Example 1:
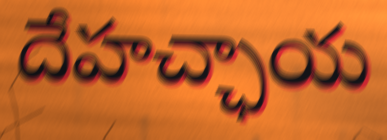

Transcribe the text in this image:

దేహచ్ఛాయ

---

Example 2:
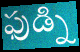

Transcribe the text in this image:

ఫుడ్ని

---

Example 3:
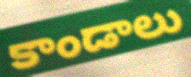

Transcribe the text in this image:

కాండాలు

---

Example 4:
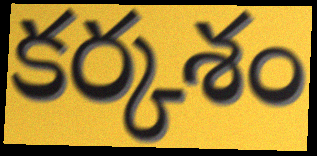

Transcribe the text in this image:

కర్కశం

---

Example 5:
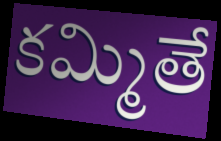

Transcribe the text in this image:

కమ్మితే